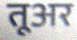
तूअर